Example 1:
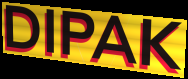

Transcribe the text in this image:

DIPAK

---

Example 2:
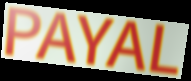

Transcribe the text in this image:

PAYAL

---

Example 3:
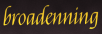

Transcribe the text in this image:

broadenning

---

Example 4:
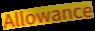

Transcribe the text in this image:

Allowance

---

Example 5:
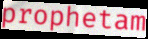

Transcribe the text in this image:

prophetam